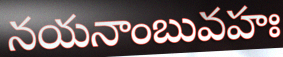
నయనాంబువహః